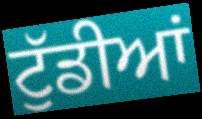
ਟੁੱਡੀਆਂ